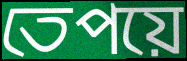
তেপয়ে